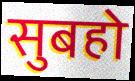
सुबहो